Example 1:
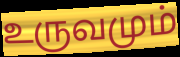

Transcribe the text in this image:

உருவமும்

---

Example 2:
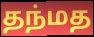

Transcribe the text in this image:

தந்மத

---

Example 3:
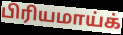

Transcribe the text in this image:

பிரியமாய்க்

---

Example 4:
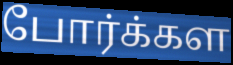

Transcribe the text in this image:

போர்க்கள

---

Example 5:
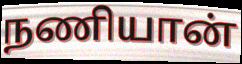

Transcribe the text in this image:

நணியான்